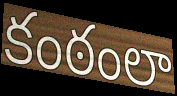
కంఠంలా